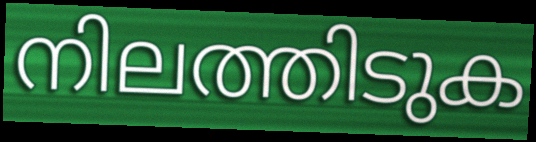
നിലത്തിടുക